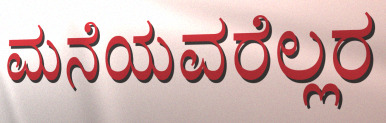
ಮನೆಯವರೆಲ್ಲರ